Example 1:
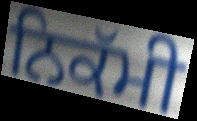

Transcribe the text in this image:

ਨਿਕੱਮੀ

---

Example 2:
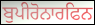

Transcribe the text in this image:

ਬੁਪੀਰੋਨਾਰਫਿਨ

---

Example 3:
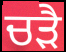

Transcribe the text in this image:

ਚੜੈ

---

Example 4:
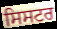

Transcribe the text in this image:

ਸਿਸਟਰ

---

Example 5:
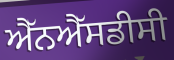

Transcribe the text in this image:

ਐੱਨਐੱਸਡੀਸੀ